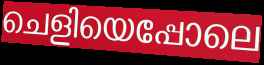
ചെളിയെപ്പോലെ